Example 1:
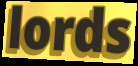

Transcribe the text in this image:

lords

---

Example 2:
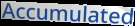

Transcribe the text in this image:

Accumulated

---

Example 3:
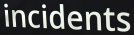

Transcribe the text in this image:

incidents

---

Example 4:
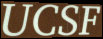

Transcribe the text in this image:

UCSF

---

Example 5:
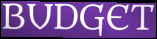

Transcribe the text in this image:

BUDGET